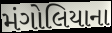
મંગોલિયાના